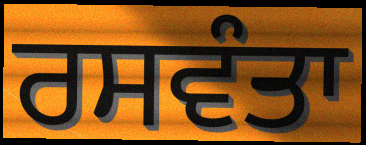
ਰਸਵੰਤਾ